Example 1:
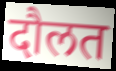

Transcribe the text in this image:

दौलत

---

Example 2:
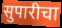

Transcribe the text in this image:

सुपारीचा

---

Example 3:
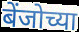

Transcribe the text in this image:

बेंजोच्या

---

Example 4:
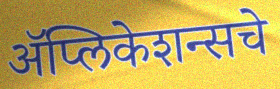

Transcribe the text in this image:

ॲप्लिकेशन्सचे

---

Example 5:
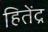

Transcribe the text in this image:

हितेंद्र